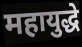
महायुद्धे